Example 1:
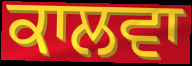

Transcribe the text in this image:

ਕਾਲਵਾ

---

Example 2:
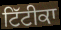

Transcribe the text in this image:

ਟਿੱਟੀਕਾ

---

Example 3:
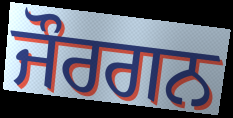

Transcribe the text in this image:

ਜੌਰਗਨ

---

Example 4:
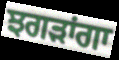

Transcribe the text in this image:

ਝਗੜਾਂਗਾ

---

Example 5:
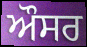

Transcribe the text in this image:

ਔਸਰ